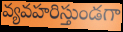
వ్యవహరిస్తుండగా